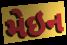
મેઇન